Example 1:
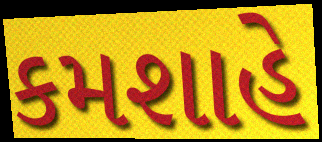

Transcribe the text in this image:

કમશાહે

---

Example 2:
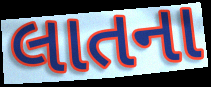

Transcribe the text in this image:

લાતના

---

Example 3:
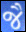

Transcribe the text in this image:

જૈ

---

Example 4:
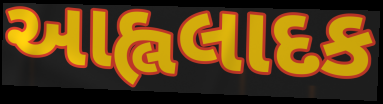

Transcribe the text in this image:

આહ્લલાદક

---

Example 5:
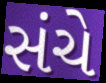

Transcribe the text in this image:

સંચે